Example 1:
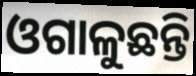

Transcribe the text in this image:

ଓଗାଳୁଛନ୍ତି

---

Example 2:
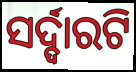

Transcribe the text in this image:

ସର୍ଦ୍ଦାରଟି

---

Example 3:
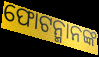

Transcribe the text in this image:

ଫୋଟନ୍ମାନଙ୍କ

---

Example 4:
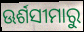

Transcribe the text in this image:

ଊର୍ଶସୀମାରୁ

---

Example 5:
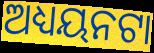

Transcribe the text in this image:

ଅଧ୍ୟୟନଟା